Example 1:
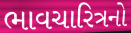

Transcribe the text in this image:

ભાવચારિત્રનો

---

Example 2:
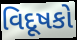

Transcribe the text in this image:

વિદૂષકો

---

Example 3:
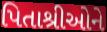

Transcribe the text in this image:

પિતાશ્રીઓને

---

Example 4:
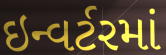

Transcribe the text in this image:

ઇન્વર્ટરમાં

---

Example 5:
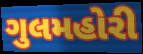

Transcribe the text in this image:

ગુલમહોરી